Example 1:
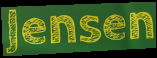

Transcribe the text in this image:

Jensen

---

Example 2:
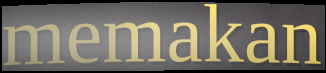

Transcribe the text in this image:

memakan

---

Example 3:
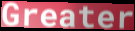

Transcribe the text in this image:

Greater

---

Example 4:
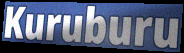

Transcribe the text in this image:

Kuruburu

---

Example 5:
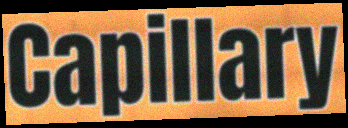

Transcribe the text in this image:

Capillary